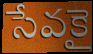
సేవకై